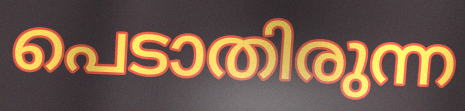
പെടാതിരുന്ന